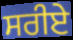
ਸਰੀਏ